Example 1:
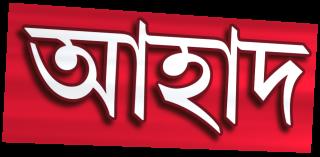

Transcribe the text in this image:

আহাদ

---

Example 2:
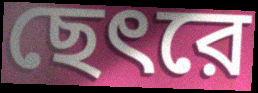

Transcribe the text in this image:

ছেৎরে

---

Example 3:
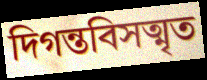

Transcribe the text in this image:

দিগন্তবিসত্মৃত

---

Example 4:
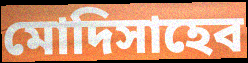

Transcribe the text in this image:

মোদিসাহেব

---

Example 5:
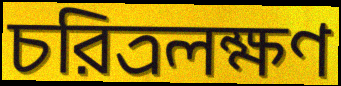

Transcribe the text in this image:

চরিত্রলক্ষণ